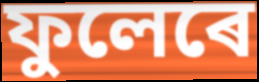
ফুলেৰে